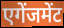
एगेंजमेंट